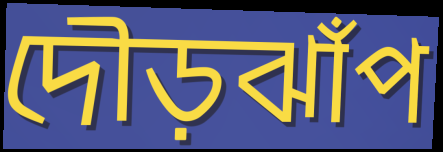
দৌড়ঝাঁপ